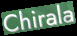
Chirala